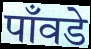
पाँवडे